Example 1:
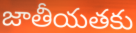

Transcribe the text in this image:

జాతీయతకు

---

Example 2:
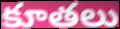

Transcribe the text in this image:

కూతలు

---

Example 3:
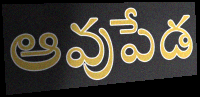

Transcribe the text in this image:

ఆవుపేడ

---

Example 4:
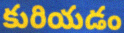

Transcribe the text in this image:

కురియడం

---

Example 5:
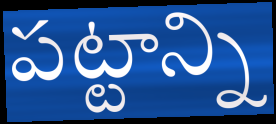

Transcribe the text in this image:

పట్టాన్ని